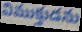
విముక్తుడను